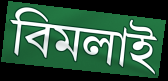
বিমলাই